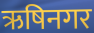
ऋषिनगर